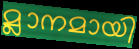
മ്ലാനമായി